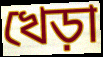
খেড়া